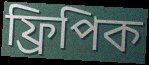
ফ্রিপিক